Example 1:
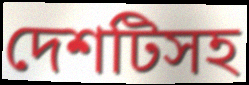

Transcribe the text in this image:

দেশটিসহ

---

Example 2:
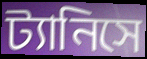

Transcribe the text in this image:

ট্যানিসে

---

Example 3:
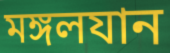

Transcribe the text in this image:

মঙ্গলযান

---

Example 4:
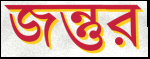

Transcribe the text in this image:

জন্তুর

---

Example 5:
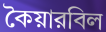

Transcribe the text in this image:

কৈয়ারবিল